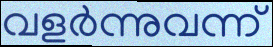
വളർന്നുവന്ന്